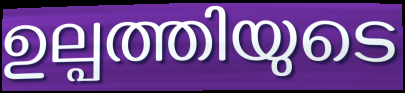
ഉല്പത്തിയുടെ